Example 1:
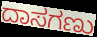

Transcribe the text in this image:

ದಾಸಗಣು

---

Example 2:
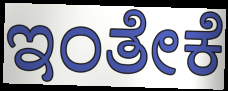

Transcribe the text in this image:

ಇಂತೇಕೆ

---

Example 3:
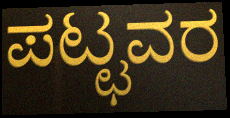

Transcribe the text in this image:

ಪಟ್ಟವರ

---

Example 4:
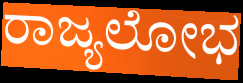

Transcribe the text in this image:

ರಾಜ್ಯಲೋಭ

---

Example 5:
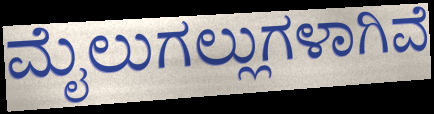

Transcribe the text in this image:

ಮೈಲುಗಲ್ಲುಗಳಾಗಿವೆ